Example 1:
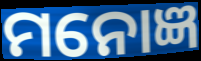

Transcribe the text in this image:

ମନୋଜ୍ଞ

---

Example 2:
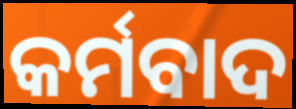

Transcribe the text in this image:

କର୍ମବାଦ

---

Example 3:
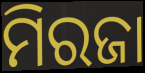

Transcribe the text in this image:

ମିରଜା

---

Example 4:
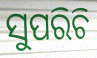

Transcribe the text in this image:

ସୁପରିଚି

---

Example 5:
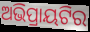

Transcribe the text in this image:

ଅଭିପ୍ରାୟଟିର